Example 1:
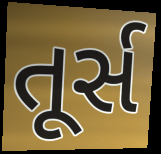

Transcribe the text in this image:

તૂર્સ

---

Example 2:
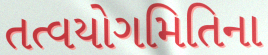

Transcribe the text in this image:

તત્વયોગમિતિના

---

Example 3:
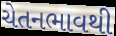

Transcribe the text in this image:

ચેતનભાવથી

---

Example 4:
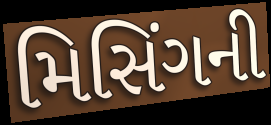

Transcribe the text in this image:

મિસિંગની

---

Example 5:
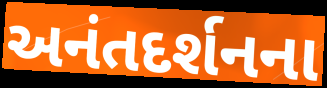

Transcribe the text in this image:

અનંતદર્શનના